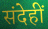
संदेहीं